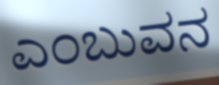
ಎಂಬುವನ